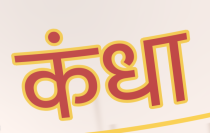
कंधा